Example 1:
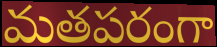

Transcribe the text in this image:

మతపరంగా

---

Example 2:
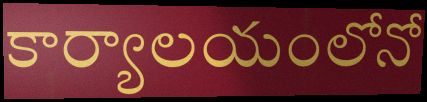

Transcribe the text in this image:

కార్యాలయంలోనో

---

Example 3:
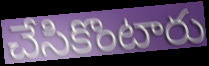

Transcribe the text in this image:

చేసికొంటారు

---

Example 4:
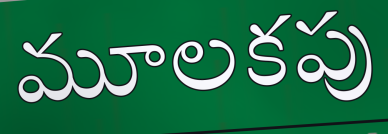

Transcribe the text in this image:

మూలకపు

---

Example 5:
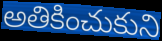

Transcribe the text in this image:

అతికించుకుని